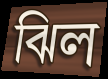
ঝিল